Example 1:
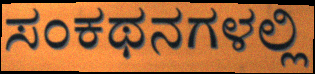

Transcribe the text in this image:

ಸಂಕಥನಗಳಲ್ಲಿ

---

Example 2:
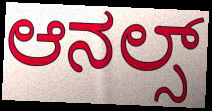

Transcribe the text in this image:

ಆನಲ್ಸ್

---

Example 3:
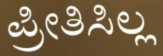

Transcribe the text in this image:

ಪ್ರೀತಿಸಿಲ್ಲ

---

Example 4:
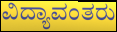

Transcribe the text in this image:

ವಿದ್ಯಾವಂತರು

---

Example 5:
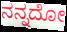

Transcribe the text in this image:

ನನ್ನದೋ